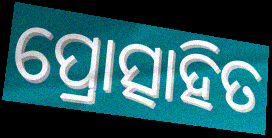
ପ୍ରୋତ୍ସାହିତ